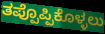
ತಪ್ಪೊಪ್ಪಿಕೊಳ್ಳಲು